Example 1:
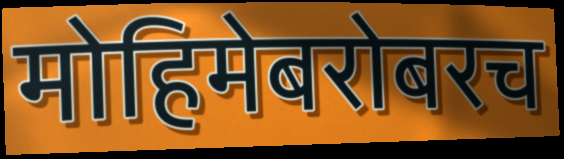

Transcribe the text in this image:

मोहिमेबरोबरच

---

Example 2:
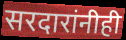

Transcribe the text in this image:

सरदारांनीही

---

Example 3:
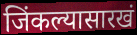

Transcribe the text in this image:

जिंकल्यासारखं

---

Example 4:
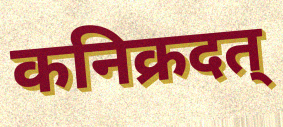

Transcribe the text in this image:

कनिक्रदत्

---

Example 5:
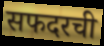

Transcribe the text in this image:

सफदरची